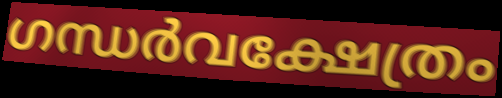
ഗന്ധർവക്ഷേത്രം